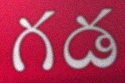
గడ